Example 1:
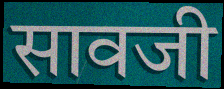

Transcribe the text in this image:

सावजी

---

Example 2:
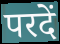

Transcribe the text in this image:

परदें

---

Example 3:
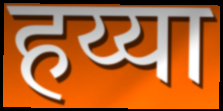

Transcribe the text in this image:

हय्या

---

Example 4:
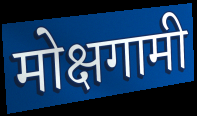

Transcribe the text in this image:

मोक्षगामी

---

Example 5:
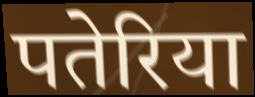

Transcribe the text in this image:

पतेरिया